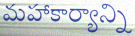
మహాకార్యాన్ని